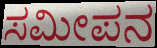
ಸಮೀಪನ